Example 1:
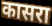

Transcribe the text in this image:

कासरा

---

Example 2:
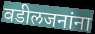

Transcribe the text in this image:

वडीलजनांना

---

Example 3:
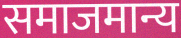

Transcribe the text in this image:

समाजमान्य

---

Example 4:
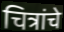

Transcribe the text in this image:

चित्रांचे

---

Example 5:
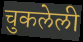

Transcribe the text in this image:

चुकलेली